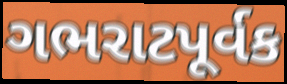
ગભરાટપૂર્વક